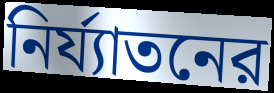
নির্য্যাতনের